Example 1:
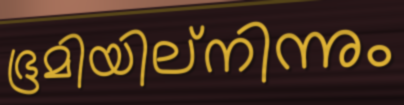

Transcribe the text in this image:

ഭൂമിയില്നിന്നും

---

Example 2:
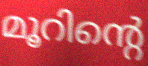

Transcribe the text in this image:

മൂറിന്റെ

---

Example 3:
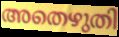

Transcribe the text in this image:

അതെഴുതി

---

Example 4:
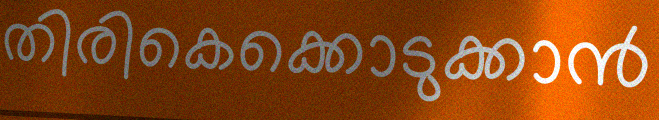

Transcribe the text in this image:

തിരികെക്കൊടുക്കാൻ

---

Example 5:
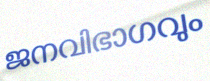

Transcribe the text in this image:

ജനവിഭാഗവും